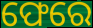
ଫେରେ